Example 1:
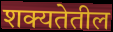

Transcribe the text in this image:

शक्यतेतील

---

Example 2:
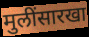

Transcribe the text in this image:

मुलींसारखा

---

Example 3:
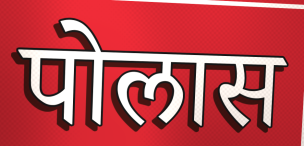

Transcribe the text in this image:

पोलास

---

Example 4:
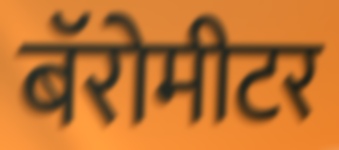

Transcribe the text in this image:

बॅरोमीटर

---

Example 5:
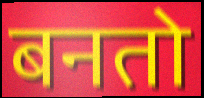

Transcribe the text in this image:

बनतो